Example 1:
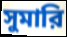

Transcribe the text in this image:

সুমারি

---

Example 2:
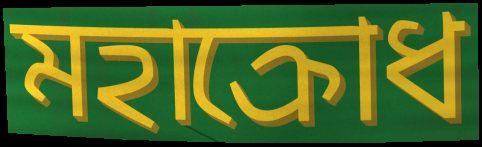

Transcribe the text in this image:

মহাক্রোধ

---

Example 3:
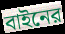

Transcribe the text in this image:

বাইনের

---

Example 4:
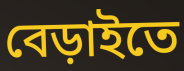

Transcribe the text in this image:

বেড়াইতে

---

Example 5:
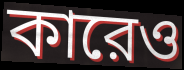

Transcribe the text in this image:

কারেও